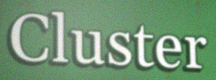
Cluster